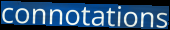
connotations